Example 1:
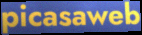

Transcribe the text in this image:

picasaweb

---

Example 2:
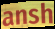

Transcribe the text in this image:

ansh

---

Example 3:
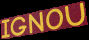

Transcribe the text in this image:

IGNOU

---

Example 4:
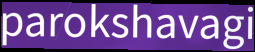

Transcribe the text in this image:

parokshavagi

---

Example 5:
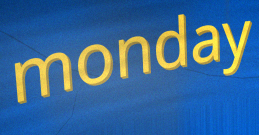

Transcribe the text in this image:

monday